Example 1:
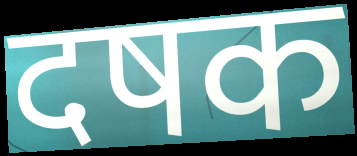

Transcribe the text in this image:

दषक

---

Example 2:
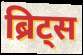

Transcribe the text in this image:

ब्रिट्स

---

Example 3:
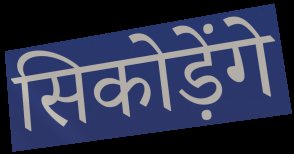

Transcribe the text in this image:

सिकोड़ेंगे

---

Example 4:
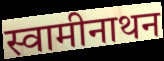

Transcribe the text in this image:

स्वामीनाथन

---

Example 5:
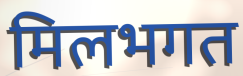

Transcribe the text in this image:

मिलभगत